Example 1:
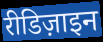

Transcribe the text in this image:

रीडिज़ाइन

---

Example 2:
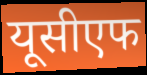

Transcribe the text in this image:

यूसीएफ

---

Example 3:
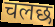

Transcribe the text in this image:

चलछ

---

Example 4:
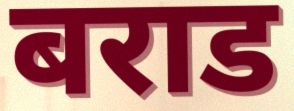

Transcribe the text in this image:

बराड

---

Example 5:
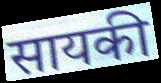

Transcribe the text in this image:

सायकी